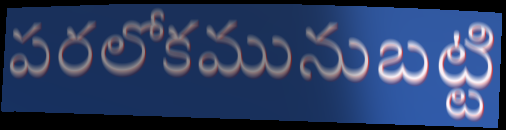
పరలోకమునుబట్టి